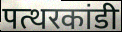
पत्थरकांडी